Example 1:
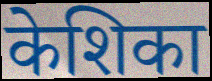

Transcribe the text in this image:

केशिका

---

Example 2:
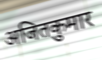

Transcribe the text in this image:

अजितकुमार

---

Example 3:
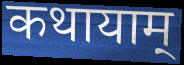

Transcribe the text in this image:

कथायाम्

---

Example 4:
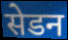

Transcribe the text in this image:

सेडन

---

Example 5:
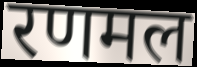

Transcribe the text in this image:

रणमल